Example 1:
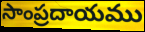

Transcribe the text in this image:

సాంప్రదాయము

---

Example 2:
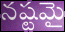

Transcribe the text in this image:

నష్టమై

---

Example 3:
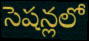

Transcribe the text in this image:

సెషన్లలో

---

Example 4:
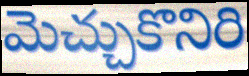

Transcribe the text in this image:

మెచ్చుకొనిరి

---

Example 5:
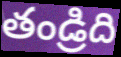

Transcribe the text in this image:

తండ్రిది